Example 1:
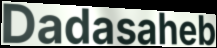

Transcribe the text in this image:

Dadasaheb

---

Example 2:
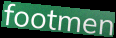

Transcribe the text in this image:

footmen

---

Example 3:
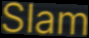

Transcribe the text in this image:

Slam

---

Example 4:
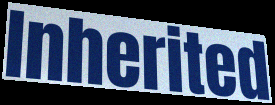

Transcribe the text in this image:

Inherited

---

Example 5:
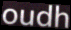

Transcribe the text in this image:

oudh